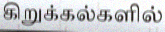
கிறுக்கல்களில்